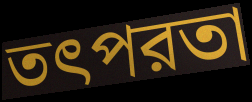
তৎপরতা